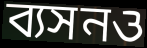
ব্যসনও